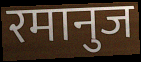
रमानुज